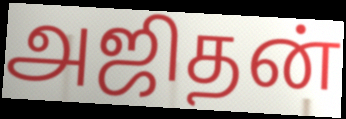
அஜிதன்